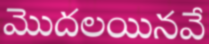
మొదలయినవే